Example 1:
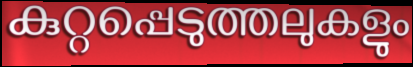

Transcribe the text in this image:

കുറ്റപ്പെടുത്തലുകളും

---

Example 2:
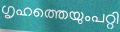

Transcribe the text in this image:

ഗൃഹത്തെയുംപറ്റി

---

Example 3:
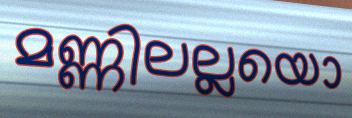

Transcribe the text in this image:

മണ്ണിലല്ലയൊ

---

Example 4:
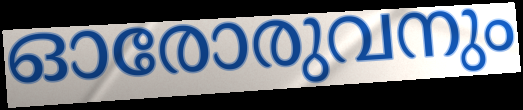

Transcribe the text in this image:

ഓരോരുവനും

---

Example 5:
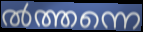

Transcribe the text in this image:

ൽത്തന്നെ